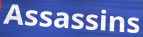
Assassins